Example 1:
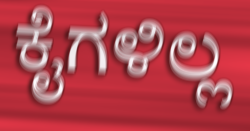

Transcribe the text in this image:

ಕೈಗಳಿಲ್ಲ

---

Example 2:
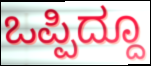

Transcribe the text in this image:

ಒಪ್ಪಿದ್ದೂ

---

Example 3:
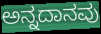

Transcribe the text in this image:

ಅನ್ನದಾನವು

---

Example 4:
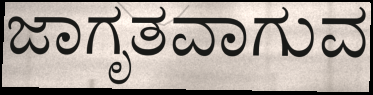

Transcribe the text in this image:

ಜಾಗೃತವಾಗುವ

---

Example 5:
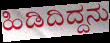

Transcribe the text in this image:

ಹಿಡಿದಿದ್ದನು